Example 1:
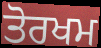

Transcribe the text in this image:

ਤੋਰਖਮ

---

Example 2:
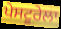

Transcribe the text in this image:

ਪੇਸਟੂਰੇਲਾ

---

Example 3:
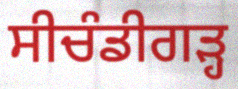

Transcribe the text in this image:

ਸੀਚੰਡੀਗੜ੍ਹ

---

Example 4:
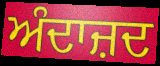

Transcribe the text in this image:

ਅੰਦਾਜ਼ਦ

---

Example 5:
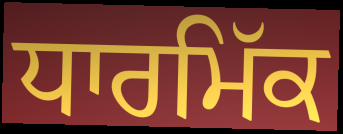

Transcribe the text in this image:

ਧਾਰਮਿੱਕ